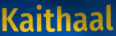
Kaithaal